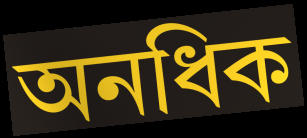
অনধিক